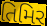
તિમિર